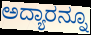
ಅದ್ಯಾರನ್ನೂ